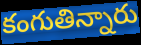
కంగుతిన్నారు